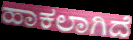
ಹಾಕಲಾಗಿದೆ